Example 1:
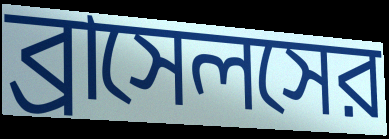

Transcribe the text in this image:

ব্রাসেলসের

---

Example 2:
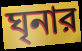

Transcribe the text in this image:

ঘৃনার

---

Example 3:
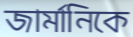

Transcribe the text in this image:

জার্মানিকে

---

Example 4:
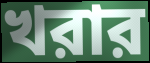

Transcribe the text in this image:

খরার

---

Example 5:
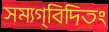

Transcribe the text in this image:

সম্যগ্‌বিদিতং